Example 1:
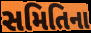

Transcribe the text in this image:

સમિતિના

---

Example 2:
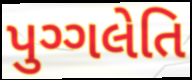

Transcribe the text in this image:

પુગ્ગલેતિ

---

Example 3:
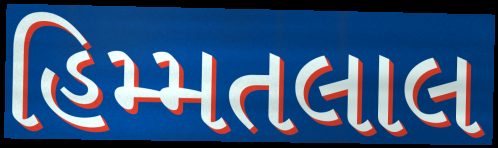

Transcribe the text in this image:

હિમ્મતલાલ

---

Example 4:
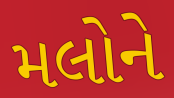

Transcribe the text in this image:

મલોને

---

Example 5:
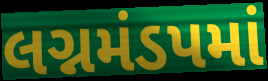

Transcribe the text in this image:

લગ્નમંડપમાં